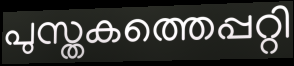
പുസ്തകത്തെപ്പറ്റി